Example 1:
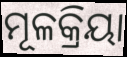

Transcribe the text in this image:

ମୂଳକ୍ରିୟା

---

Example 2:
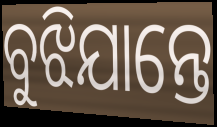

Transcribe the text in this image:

ବୁଝିଯାନ୍ତେ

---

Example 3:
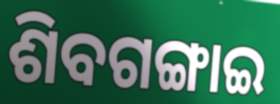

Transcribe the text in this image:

ଶିବଗଙ୍ଗାଇ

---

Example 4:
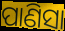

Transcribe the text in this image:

ପାଣିସା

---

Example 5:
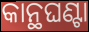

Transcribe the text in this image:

କାନ୍ଥଘଣ୍ଟା